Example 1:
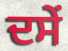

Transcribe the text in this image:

ਦਸੇਂ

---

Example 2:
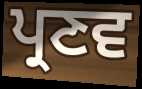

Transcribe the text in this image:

ਪ੍ਰਣਵ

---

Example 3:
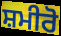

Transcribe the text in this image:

ਸ਼ਮੀਰੋ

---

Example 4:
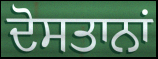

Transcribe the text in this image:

ਦੋਸਤਾਨਾਂ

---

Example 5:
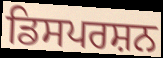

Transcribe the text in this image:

ਡਿਸਪਰਸ਼ਨ